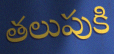
తలుపుకి